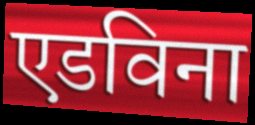
एडविना